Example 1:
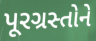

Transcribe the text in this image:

પૂરગ્રસ્તોને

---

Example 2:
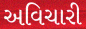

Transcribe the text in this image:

અવિચારી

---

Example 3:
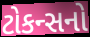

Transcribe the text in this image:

ટોકન્સનો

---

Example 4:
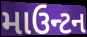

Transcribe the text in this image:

માઉન્ટન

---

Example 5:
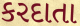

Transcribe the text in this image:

કરદાતા